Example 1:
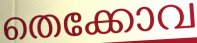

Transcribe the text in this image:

തെക്കോവ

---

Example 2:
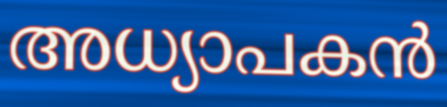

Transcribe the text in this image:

അധ്യാപകൻ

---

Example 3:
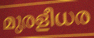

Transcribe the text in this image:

മുരളീധര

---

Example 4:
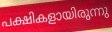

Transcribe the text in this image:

പക്ഷികളായിരുന്നു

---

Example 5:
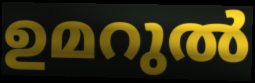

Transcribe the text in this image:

ഉമറുൽ